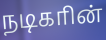
நடிகரின்